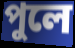
পুলে